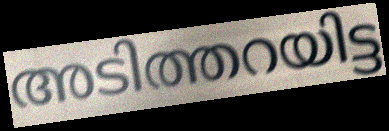
അടിത്തറയിട്ട